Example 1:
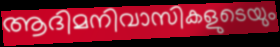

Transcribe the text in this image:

ആദിമനിവാസികളുടെയും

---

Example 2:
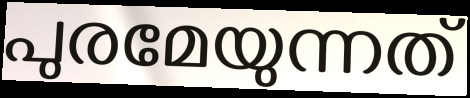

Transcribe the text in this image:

പുരമേയുന്നത്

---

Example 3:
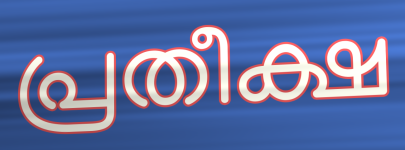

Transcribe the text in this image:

പ്രതീക്ഷ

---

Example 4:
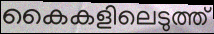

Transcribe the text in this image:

കൈകളിലെടുത്ത്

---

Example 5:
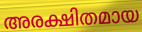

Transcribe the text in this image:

അരക്ഷിതമായ